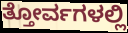
ತ್ತೋರ್ವಗಳಲ್ಲಿ